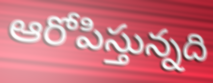
ఆరోపిస్తున్నది